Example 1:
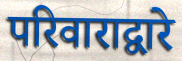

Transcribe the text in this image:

परिवाराद्वारे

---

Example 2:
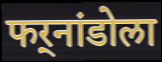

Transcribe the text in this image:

फर्नांडोला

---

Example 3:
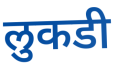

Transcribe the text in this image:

लुकडी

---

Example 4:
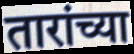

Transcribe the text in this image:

तारांच्या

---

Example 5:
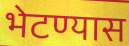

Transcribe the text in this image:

भेटण्यास